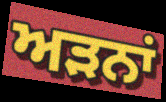
ਅੜਨਾਂ